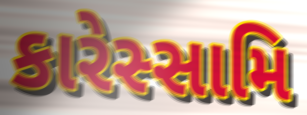
કારેસ્સામિ